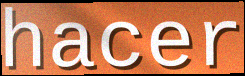
hacer